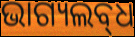
ଭାଗ୍ୟଲବ୍‌ଧ